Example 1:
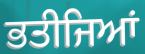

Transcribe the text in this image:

ਭਤੀਜਿਆਂ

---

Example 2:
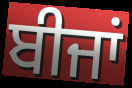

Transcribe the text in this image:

ਬੀਜਾਂ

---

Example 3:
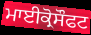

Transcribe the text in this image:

ਮਾਈਕ੍ਰੋਸੌਫਟ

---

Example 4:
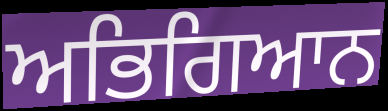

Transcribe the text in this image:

ਅਭਿਗਿਆਨ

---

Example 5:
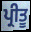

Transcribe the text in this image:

ਪ੍ਰੀਤੂ